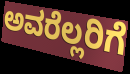
ಅವರೆಲ್ಲರಿಗೆ